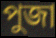
পুজা